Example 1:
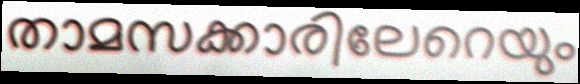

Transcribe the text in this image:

താമസക്കാരിലേറെയും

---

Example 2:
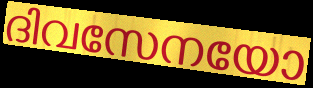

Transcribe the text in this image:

ദിവസേനയോ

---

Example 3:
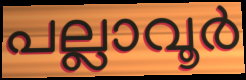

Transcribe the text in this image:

പല്ലാവൂർ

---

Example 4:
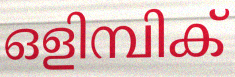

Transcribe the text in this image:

ഒളിമ്പിക്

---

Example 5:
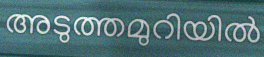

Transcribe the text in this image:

അടുത്തമുറിയിൽ